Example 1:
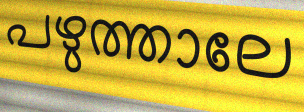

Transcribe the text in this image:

പഴുത്താലേ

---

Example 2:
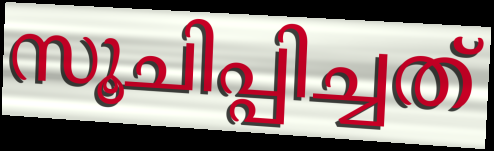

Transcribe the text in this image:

സൂചിപ്പിച്ചത്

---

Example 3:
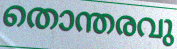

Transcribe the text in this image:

തൊന്തരവു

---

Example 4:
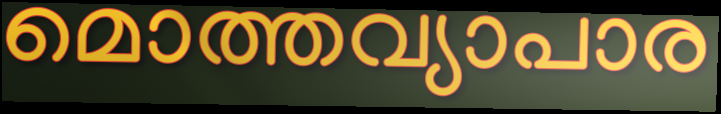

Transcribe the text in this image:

മൊത്തവ്യാപാര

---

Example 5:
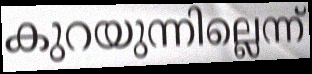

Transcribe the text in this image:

കുറയുന്നില്ലെന്ന്